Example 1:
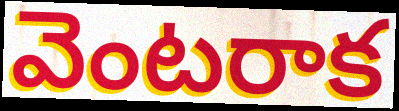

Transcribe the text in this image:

వెంటరాక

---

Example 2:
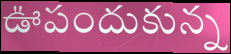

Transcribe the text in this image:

ఊపందుకున్న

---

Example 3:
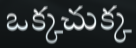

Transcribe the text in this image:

ఒక్కచుక్క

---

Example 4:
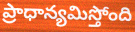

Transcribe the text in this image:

ప్రాధాన్యమిస్తోంది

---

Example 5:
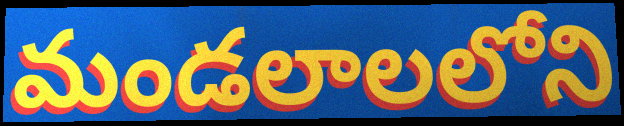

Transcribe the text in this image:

మండలాలలోని